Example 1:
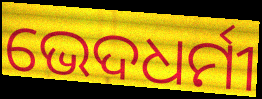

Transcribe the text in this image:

ଭେଦଧର୍ମୀ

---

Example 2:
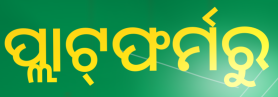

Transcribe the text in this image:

ପ୍ଲାଟ୍‌ଫର୍ମରୁ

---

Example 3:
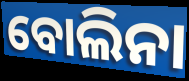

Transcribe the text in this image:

ବୋଲିନା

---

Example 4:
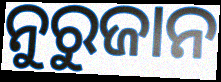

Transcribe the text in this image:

ନୁରୁଜାନ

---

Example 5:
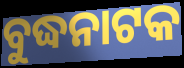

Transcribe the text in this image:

ବୁଦ୍ଧନାଟକ